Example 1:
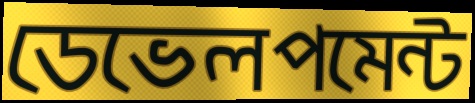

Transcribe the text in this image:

ডেভেলপমেন্ট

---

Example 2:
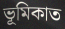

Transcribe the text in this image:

ভূমিকাত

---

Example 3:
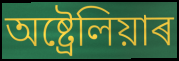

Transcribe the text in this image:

অষ্ট্ৰেলিয়াৰ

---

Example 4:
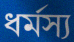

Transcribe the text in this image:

ধৰ্মস্য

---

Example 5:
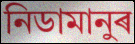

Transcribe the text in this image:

নিডামানুৰ